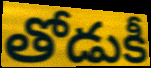
తోడుకీ